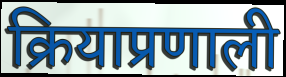
क्रियाप्रणाली